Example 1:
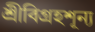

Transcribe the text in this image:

শ্রীবিগ্রহশূন্য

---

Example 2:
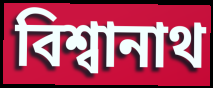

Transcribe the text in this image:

বিশ্বানাথ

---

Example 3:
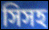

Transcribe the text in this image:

সিসহ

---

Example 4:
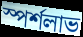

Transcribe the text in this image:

স্পর্শলাভ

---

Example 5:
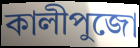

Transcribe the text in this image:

কালীপুজো